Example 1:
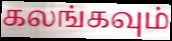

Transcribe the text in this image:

கலங்கவும்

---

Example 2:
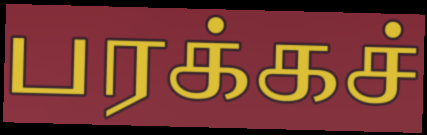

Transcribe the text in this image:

பரக்கச்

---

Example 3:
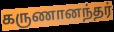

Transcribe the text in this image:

கருணானந்தர்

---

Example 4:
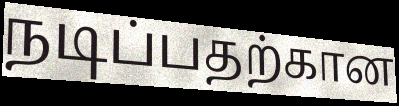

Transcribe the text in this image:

நடிப்பதற்கான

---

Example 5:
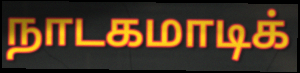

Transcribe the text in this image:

நாடகமாடிக்